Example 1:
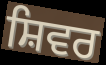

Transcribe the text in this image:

ਸ਼ਿਵਰ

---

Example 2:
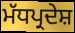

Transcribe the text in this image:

ਮੱਧਪ੍ਰਦੇਸ਼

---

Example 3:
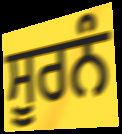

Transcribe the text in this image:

ਸੂਰਨੰ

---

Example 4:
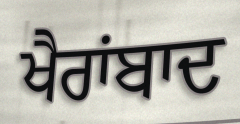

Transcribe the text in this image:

ਖੈਰਾਂਬਾਦ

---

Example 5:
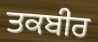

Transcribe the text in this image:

ਤਕਬੀਰ